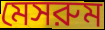
মেসরুম